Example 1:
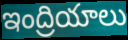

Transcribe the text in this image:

ఇంద్రియాలు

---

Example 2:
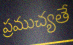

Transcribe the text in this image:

ప్రముచ్యతే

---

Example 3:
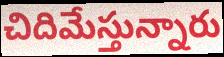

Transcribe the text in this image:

చిదిమేస్తున్నారు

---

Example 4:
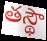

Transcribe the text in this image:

తస్థౌ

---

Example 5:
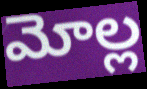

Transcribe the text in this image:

మోల్ల